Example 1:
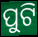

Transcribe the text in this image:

ପୁଟି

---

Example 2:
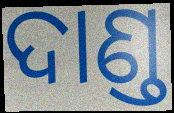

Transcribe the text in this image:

ଦାଣ୍ଡ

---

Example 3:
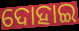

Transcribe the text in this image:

ଦୋହାଇ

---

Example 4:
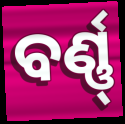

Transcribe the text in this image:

ବର୍ଣ୍ଣ୍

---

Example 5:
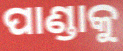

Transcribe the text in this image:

ପାଣ୍ଡାକୁ